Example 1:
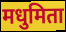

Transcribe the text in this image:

मधुमिता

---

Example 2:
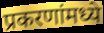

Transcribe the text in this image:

प्रकरणांमध्ये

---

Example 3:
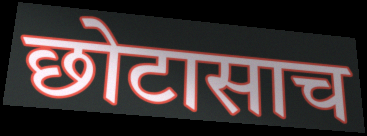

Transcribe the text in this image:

छोटासाच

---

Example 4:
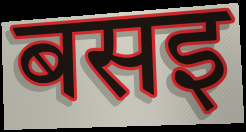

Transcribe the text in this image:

बसइ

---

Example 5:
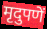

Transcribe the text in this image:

मृदुपणें